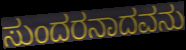
ಸುಂದರನಾದವನು